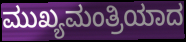
ಮುಖ್ಯಮಂತ್ರಿಯಾದ